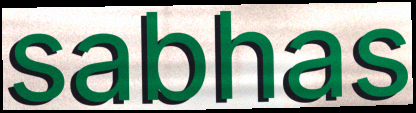
sabhas